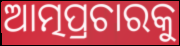
ଆତ୍ମପ୍ରଚାରକୁ